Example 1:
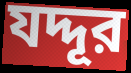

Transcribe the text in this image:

যদ্দূর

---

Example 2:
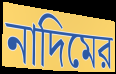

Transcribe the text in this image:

নাদিমের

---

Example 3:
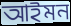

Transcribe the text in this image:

আইমন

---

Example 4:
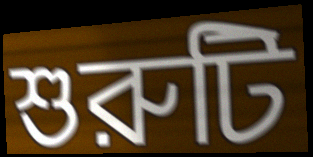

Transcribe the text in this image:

শুরুটি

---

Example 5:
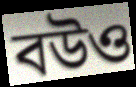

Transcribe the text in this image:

বউও